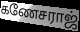
கணேசராஜ்